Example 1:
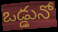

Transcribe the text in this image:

ఒడ్డునో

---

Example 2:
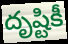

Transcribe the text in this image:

దృష్టికీ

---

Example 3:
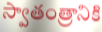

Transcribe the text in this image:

స్వాతంత్రానికి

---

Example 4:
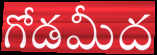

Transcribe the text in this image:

గోడమీద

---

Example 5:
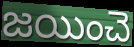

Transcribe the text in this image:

జయించె